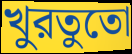
খুরতুতো